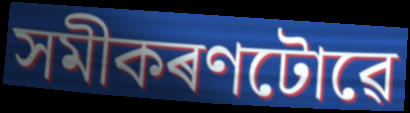
সমীকৰণটোৱে